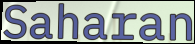
Saharan